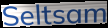
Seltsam